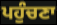
ਪਹੁੰਚਣਾ